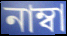
নাম্বা